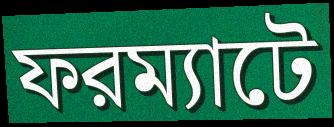
ফরম্যাটে